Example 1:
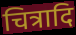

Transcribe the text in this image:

चित्रादि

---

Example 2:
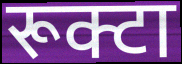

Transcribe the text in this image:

रूक्टा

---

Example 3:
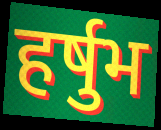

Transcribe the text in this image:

हर्षुभ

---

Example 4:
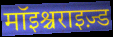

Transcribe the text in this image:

मॉइश्चराइज़्ड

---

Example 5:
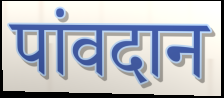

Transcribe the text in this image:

पांवदान